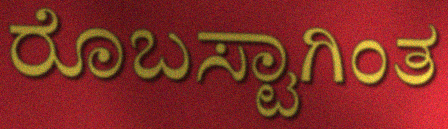
ರೊಬಸ್ಟಾಗಿಂತ